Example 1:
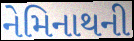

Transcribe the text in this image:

નેમિનાથની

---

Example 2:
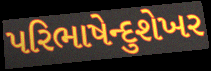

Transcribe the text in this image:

પરિભાષેન્દુશેખર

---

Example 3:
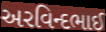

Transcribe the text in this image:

અરવિન્દભાઈ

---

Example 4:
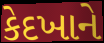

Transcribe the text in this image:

કેદખાને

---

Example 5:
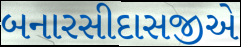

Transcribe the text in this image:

બનારસીદાસજીએ